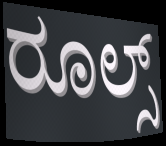
ರೂಲ್ಸ್